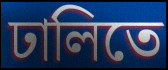
ঢালিতে